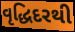
વૃદ્ધિદરથી